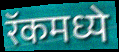
रॅकमध्ये